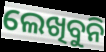
ଲେଖିବୁନି